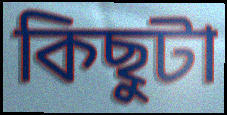
কিছুটা